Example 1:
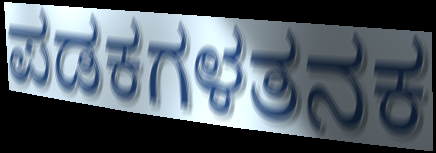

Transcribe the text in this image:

ಪಡಕಗಳತನಕ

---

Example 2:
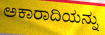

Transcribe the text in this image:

ಅಕಾರಾದಿಯನ್ನು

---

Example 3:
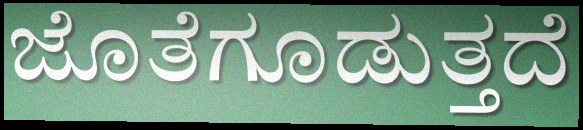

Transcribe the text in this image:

ಜೊತೆಗೂಡುತ್ತದೆ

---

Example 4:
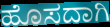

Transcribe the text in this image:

ಹೊಸದಾಗಿ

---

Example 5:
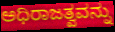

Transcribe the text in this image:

ಅಧಿರಾಜತ್ವವನ್ನು